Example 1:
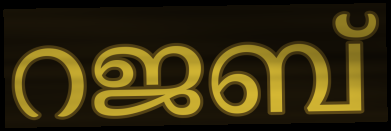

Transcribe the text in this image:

റജബ്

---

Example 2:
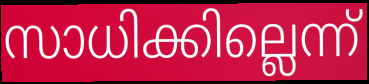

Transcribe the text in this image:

സാധിക്കില്ലെന്ന്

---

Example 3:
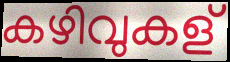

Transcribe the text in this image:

കഴിവുകള്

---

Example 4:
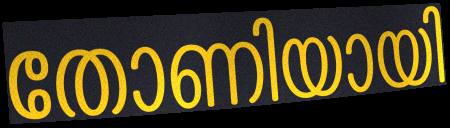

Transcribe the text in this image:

തോണിയായി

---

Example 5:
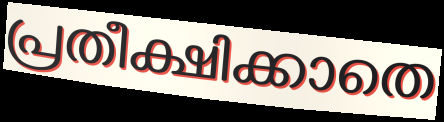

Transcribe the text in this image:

പ്രതീക്ഷിക്കാതെ